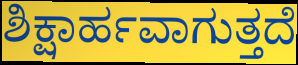
ಶಿಕ್ಷಾರ್ಹವಾಗುತ್ತದೆ